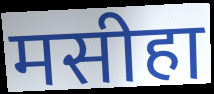
मसीहा